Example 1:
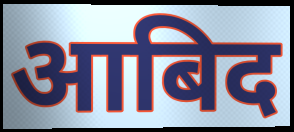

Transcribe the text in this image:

आबिद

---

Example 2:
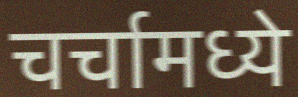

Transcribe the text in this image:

चर्चामध्ये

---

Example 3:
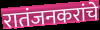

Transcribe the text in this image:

रातंजनकरांचे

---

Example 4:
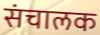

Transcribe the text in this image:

संचालक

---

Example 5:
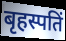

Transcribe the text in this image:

बृहस्पतिं